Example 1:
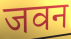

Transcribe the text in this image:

जवन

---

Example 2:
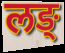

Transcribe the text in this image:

लङ्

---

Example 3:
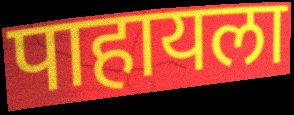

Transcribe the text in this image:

पाहायला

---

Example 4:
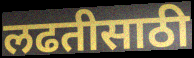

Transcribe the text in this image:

लढतीसाठी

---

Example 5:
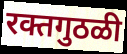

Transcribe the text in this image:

रक्तगुठळी